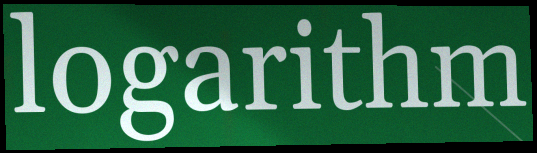
logarithm